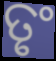
ତୃଂ